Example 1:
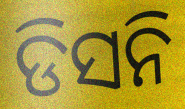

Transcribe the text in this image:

ଡିସନି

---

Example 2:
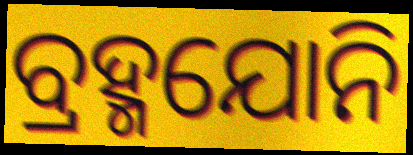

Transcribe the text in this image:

ବ୍ରହ୍ମଯୋନି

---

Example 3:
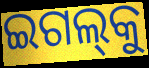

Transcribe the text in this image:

ଇଗଲ୍‌କୁ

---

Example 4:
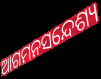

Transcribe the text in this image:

ଆଗମନସନ୍ଦେଶ୍ୟ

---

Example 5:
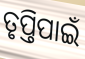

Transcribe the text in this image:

ତୃପ୍ତିପାଇଁ